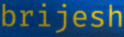
brijesh